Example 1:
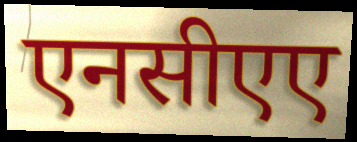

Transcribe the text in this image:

एनसीएए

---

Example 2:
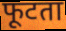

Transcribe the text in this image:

फूटता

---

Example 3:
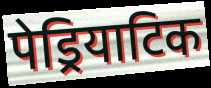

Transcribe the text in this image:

पेड्रियाटिक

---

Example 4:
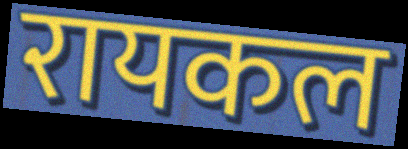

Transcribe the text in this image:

रायकल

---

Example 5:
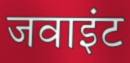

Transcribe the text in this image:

जवाइंट